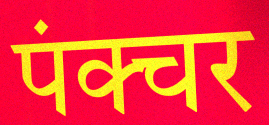
पंक्‍चर